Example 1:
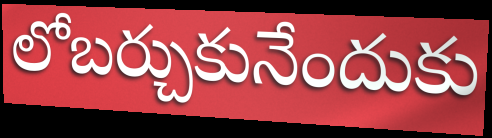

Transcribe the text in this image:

లోబర్చుకునేందుకు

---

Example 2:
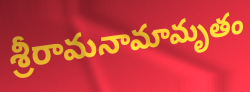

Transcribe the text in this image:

శ్రీరామనామామృతం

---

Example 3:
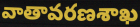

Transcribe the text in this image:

వాతావరణశాఖ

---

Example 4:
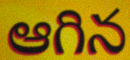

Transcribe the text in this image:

ఆగిన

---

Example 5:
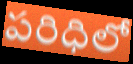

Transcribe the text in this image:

పరిధిలో